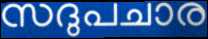
സദുപചാര